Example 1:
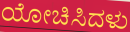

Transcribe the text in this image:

ಯೋಚಿಸಿದಳು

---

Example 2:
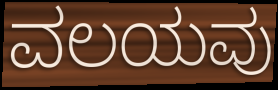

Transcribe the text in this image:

ವಲಯವು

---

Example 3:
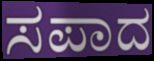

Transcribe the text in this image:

ಸಪಾದ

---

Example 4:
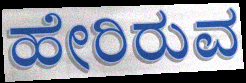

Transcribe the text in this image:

ಹೇರಿರುವ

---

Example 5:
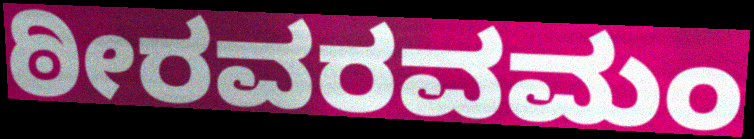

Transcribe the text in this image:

ಠೀರವರವಮಂ